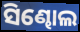
ସିଣ୍ଢୋଲ